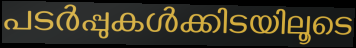
പടർപ്പുകൾക്കിടയിലൂടെ